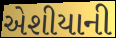
એશીયાની